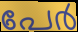
പേർ